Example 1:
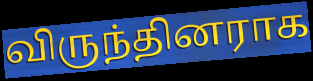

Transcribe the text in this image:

விருந்தினராக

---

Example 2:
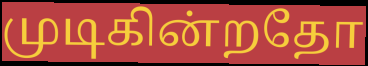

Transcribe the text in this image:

முடிகின்றதோ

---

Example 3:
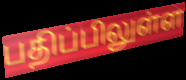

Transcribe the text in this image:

பதிப்பிலுள்ள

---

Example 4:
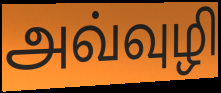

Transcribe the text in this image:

அவ்வுழி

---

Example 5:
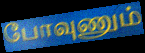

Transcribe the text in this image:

போவுணும்